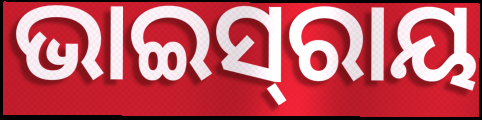
ଭାଇସ୍‍ରାୟ